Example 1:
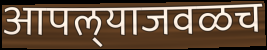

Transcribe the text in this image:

आपल्याजवळच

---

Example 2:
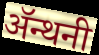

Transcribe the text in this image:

ॲन्थनी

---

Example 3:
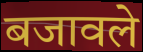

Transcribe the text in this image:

बजावले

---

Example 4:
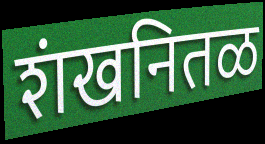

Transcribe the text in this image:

शंखनितळ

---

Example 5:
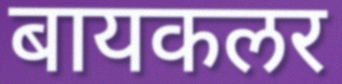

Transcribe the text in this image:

बायकलर